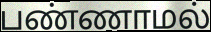
பண்ணாமல்